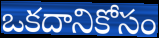
ఒకదానికోసం